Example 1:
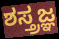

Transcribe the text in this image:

ಶಸ್ತ್ರಜ್ಞ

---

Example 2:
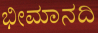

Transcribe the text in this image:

ಭೀಮಾನದಿ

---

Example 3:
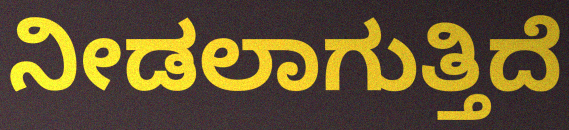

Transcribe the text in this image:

ನೀಡಲಾಗುತ್ತಿದೆ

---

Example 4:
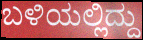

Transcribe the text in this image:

ಬಳಿಯಲ್ಲಿದ್ದು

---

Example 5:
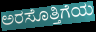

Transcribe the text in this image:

ಅರಸೊತ್ತಿಗೆಯ